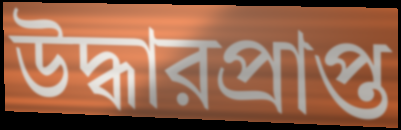
উদ্ধারপ্রাপ্ত